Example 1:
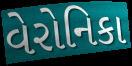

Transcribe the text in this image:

વેરોનિકા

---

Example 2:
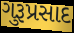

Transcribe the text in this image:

ગુરૂપ્રસાદ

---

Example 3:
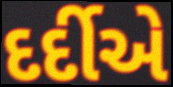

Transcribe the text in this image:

દર્દીએ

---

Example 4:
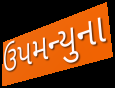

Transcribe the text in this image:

ઉપમન્યુના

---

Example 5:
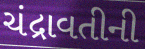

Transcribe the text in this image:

ચંદ્રાવતીની